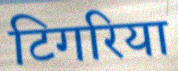
टिगरिया